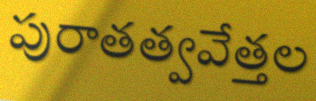
పురాతత్వవేత్తల